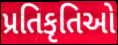
પ્રતિકૃતિઓ